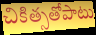
చికిత్సతోపాటు